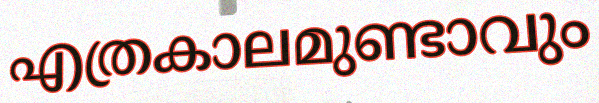
എത്രകാലമുണ്ടാവും